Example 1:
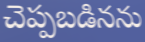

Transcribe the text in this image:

చెప్పబడినను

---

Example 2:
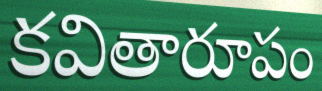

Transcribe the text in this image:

కవితారూపం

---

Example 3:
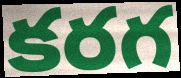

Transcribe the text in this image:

కరగ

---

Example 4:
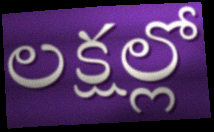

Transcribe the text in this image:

లక్షల్లో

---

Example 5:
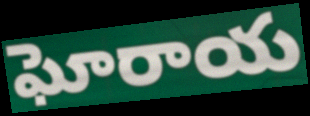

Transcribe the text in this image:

ఘోరాయ